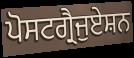
ਪੋਸਟਗ੍ਰੈਜੁਏਸ਼ਨ